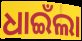
ଧାଇଁଲା